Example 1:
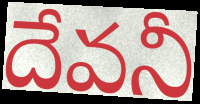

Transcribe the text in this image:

దేవనీ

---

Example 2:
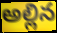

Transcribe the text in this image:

అల్లిన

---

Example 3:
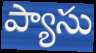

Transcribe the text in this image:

ప్యాసు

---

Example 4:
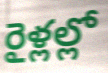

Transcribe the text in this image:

రైళ్లల్లో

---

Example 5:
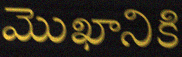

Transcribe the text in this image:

మొఖానికి